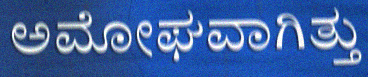
ಅಮೋಘವಾಗಿತ್ತು